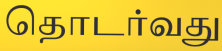
தொடர்வது